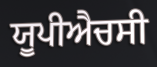
ਯੂਪੀਐਚਸੀ